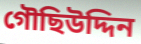
গৌছিউদ্দিন